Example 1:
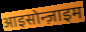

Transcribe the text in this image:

आइसोन्ज़ाइम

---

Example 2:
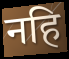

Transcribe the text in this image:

नहि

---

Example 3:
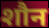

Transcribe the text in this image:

शौन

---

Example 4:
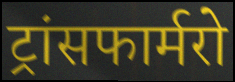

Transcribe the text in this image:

ट्रांसफार्मरो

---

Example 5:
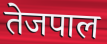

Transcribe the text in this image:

तेजपाल